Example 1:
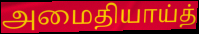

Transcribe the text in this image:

அமைதியாய்த்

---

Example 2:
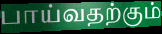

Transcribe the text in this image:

பாய்வதற்கும்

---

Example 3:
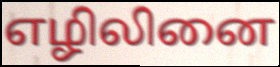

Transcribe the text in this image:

எழிலினை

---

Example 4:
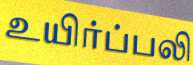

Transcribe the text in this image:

உயிர்ப்பலி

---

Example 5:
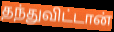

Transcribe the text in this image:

தந்துவிட்டான்